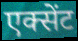
एक्सेंट